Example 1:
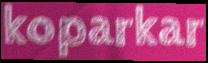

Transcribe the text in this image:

koparkar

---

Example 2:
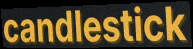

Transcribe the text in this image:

candlestick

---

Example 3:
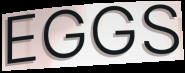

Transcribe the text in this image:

EGGS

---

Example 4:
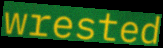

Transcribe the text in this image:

wrested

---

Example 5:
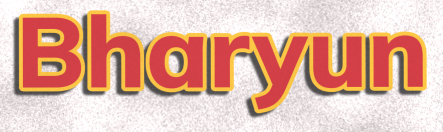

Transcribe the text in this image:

Bharyun